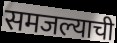
समजल्याची